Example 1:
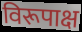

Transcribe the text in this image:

विरूपाक्ष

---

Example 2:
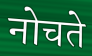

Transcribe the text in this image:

नोचते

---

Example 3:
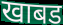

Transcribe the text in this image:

खाबड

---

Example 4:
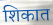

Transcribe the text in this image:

शिकात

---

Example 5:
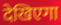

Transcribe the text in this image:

देखिएगा